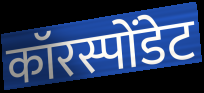
कॉरस्पोंडेट